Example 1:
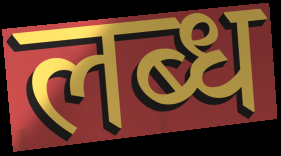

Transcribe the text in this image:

लब्ध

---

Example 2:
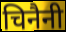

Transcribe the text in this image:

चिनैनी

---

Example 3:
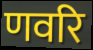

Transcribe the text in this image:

णवरि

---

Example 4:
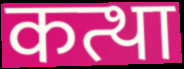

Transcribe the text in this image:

कत्था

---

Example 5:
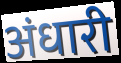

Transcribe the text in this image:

अंधारी